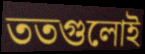
ততগুলোই